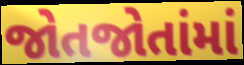
જોતજોતાંમાં